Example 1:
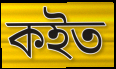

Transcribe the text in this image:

কইত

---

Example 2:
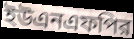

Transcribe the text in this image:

ইউএনএফপির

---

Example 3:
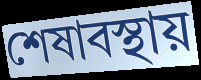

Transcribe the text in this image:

শেষাবস্থায়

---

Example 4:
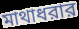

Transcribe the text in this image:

মাথাধরার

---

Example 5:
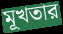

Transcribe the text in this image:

মূখতার